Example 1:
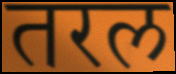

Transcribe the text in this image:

तरल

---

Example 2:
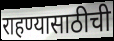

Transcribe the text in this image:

राहण्यासाठीची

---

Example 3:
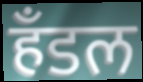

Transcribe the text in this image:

हॅंडल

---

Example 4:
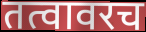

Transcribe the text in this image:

तत्वावरच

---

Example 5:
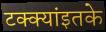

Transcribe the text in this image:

टक्क्यांइतके